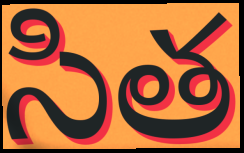
సిత